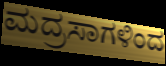
ಮದ್ರಸಾಗಳಿಂದ